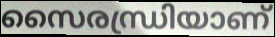
സൈരന്ധ്രിയാണ്